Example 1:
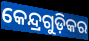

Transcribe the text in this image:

କେନ୍ଦ୍ରଗୁଡ଼ିକର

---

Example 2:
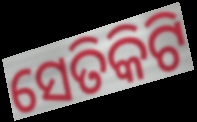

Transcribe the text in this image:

ସେତିକିଟି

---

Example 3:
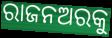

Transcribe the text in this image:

ରାଜନଅରକୁ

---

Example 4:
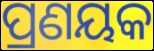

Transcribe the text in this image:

ପ୍ରଣୟକ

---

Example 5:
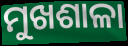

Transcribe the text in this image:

ମୁଖଶାଳା